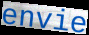
envie